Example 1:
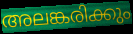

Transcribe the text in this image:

അലങ്കരിക്കും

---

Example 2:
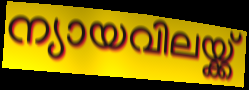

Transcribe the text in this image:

ന്യായവിലയ്ക്ക്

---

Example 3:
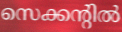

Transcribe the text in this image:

സെക്കന്റിൽ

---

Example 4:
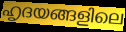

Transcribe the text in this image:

ഹൃദയങ്ങളിലെ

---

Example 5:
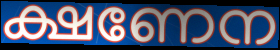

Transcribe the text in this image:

ക്ഷണേന